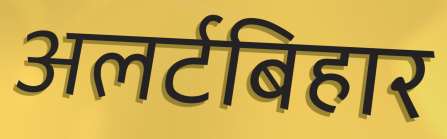
अलर्टबिहार